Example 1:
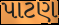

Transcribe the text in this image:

પાટણ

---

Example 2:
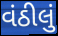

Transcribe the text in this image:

વંઠીલું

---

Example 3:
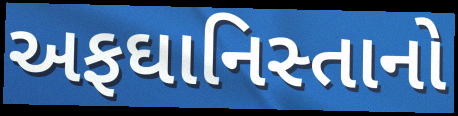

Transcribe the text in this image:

અફઘાનિસ્તાનો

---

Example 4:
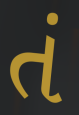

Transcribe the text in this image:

તં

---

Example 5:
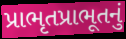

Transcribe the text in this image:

પ્રાભૃતપ્રાભૂતનું